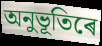
অনুভূতিৰে